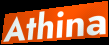
Athina